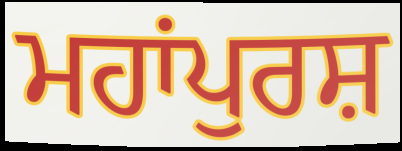
ਮਹਾਂਪੁਰਸ਼